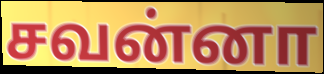
சவன்னா